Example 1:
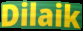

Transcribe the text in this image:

Dilaik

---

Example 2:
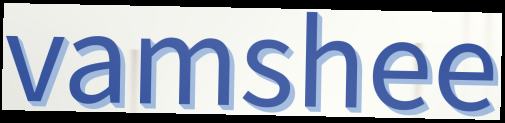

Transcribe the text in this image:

vamshee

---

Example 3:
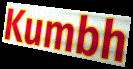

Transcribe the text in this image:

Kumbh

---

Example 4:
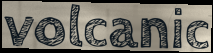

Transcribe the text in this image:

volcanic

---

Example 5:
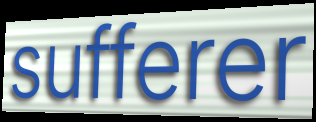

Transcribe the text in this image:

sufferer